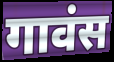
गावंस